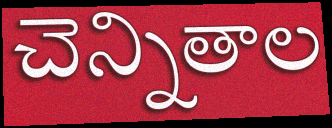
చెన్నితాల